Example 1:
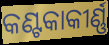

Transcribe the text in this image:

କଣ୍ଟକାକୀର୍ଣ୍ଣ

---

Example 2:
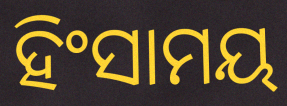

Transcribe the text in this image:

ହିଂସାମୟ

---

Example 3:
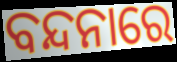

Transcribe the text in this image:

ବନ୍ଦନାରେ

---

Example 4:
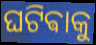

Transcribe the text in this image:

ଘଟିଵାକୁ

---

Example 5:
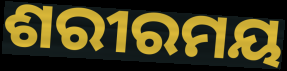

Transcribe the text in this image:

ଶରୀରମୟ